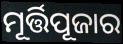
ମୂର୍ତ୍ତିପୂଜାର